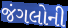
જંગલોની